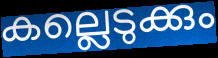
കല്ലെടുക്കും